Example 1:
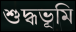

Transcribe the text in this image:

শুদ্ধভূমি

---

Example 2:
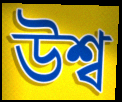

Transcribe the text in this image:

উশ্ব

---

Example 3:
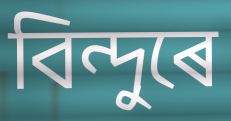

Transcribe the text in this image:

বিন্দুৰে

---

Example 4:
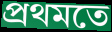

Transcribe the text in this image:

প্ৰথমতে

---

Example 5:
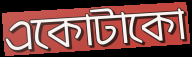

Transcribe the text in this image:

একোটাকো